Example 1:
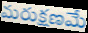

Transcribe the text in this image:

మరుక్షణమే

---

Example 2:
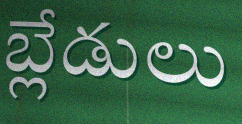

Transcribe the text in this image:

బ్లేడులు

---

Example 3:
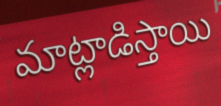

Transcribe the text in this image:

మాట్లాడిస్తాయి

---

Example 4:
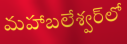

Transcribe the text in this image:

మహాబలేశ్వర్‌లో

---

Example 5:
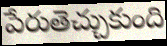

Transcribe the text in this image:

పేరుతెచ్చుకుంది